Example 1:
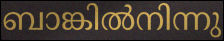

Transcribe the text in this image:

ബാങ്കിൽനിന്നു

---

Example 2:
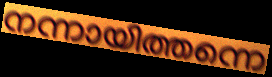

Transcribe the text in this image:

നന്നായിത്തന്നെ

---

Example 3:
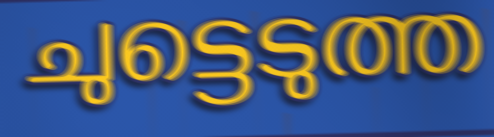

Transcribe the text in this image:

ചുട്ടെടുത്ത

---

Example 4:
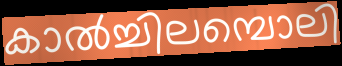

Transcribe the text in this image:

കാൽച്ചിലമ്പൊലി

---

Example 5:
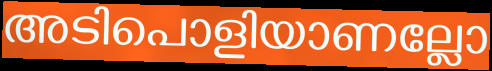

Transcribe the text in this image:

അടിപൊളിയാണല്ലോ